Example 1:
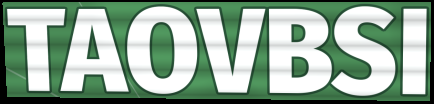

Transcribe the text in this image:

TAOVBSI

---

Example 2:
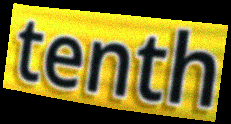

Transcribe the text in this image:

tenth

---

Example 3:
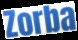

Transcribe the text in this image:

Zorba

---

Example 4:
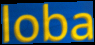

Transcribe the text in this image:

loba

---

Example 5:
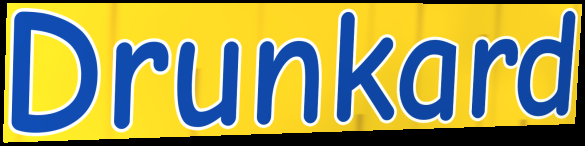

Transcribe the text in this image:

Drunkard